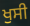
ਖੁਸੀ